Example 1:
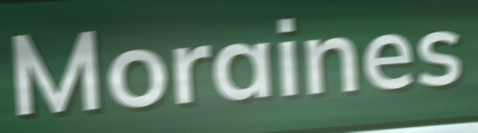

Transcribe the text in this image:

Moraines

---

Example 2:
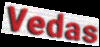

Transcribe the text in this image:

Vedas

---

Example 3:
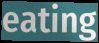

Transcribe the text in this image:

eating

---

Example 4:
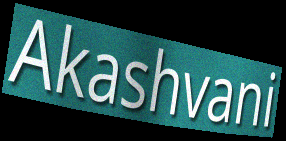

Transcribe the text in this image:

Akashvani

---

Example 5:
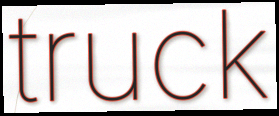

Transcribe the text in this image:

truck